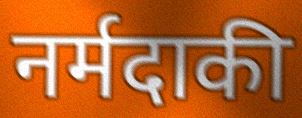
नर्मदाकी